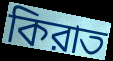
কিরাত